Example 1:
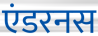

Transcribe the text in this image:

एंडरनस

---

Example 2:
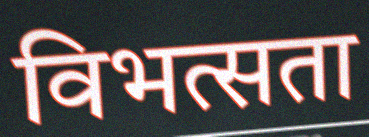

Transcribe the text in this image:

विभत्सता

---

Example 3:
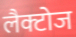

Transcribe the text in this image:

लैक्‍टोज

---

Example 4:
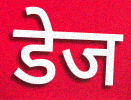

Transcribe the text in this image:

डेज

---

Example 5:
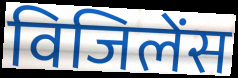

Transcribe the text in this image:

विजिलेंस